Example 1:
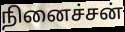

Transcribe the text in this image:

நினைச்சன்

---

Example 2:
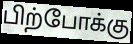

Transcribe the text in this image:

பிற்போக்கு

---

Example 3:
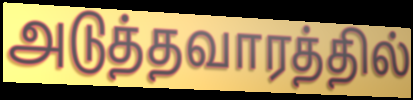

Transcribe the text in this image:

அடுத்தவாரத்தில்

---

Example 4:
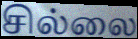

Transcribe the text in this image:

சில்லை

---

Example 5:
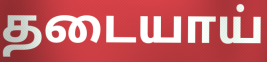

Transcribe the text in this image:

தடையாய்